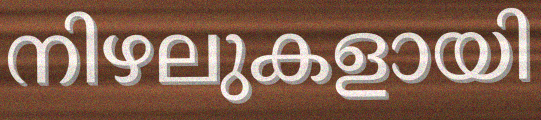
നിഴലുകളായി